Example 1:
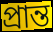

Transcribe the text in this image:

প্ৰান্ত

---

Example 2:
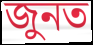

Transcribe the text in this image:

জুনত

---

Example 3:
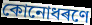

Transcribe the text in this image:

কোনোধৰণে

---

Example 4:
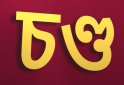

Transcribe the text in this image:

চণ্ড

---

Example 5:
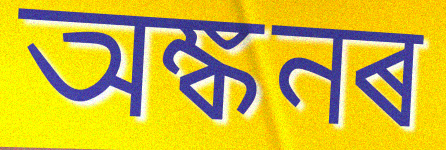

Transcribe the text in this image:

অঙ্কনৰ